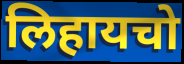
लिहायचो